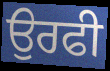
ਉਰਫੀ